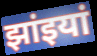
झांइयां